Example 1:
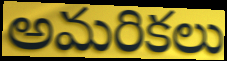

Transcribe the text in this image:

అమరికలు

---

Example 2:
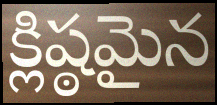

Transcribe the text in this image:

క్లిష్ఠమైన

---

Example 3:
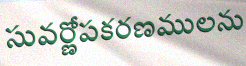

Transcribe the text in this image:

సువర్ణోపకరణములను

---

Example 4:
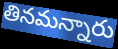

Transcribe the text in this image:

తినమన్నారు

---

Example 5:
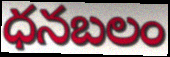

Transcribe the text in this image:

ధనబలం